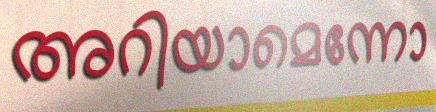
അറിയാമെന്നോ